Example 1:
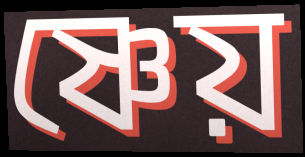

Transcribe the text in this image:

ষ্ণেয়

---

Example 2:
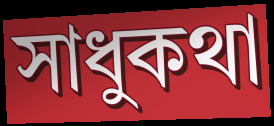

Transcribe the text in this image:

সাধুকথা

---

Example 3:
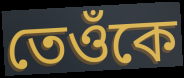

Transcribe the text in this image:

তেওঁকে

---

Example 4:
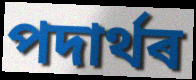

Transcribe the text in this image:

পদাৰ্থৰ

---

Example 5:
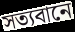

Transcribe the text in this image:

সত্যবানে